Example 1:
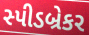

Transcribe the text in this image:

સ્પીડબ્રેકર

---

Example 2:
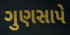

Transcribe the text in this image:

ગુણસાપે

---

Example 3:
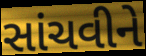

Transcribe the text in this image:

સાંચવીને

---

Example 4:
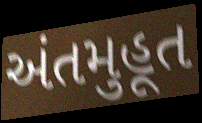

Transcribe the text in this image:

અંતમુહૂત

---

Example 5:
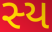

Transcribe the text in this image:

સ્ય